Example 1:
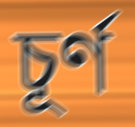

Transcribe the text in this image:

চূর্ণ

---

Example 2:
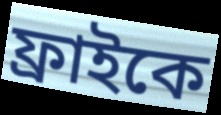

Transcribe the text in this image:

ফ্রাইকে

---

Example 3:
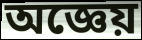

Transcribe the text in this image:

অজ্ঞেয়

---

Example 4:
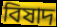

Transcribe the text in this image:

বিষাদ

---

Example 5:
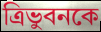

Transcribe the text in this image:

ত্রিভুবনকে